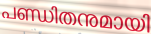
പണ്ഡിതനുമായി